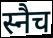
स्नैच